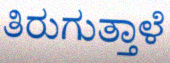
ತಿರುಗುತ್ತಾಳೆ